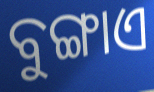
ବୁଙ୍ଗାଏ